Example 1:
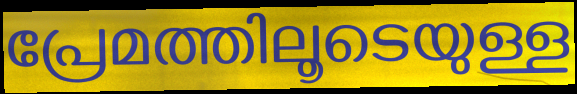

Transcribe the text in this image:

പ്രേമത്തിലൂടെയുള്ള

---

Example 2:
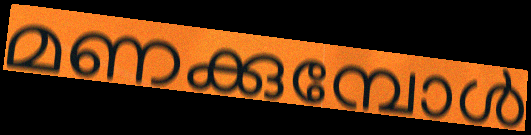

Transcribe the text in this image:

മണക്കുമ്പോൾ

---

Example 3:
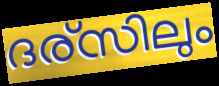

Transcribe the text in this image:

ദര്സിലും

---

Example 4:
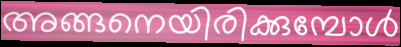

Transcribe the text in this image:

അങ്ങനെയിരിക്കുമ്പോൾ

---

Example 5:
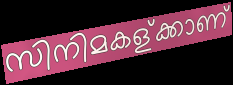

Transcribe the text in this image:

സിനിമകള്ക്കാണ്